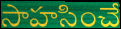
సాహసించే